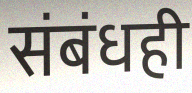
संबंधही